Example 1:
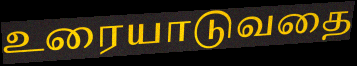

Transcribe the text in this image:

உரையாடுவதை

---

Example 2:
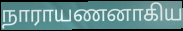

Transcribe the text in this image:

நாராயணனாகிய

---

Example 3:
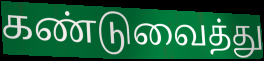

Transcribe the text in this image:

கண்டுவைத்து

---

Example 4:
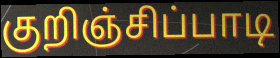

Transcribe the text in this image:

குறிஞ்சிப்பாடி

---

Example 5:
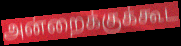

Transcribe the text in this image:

அன்றைக்குக்கூட